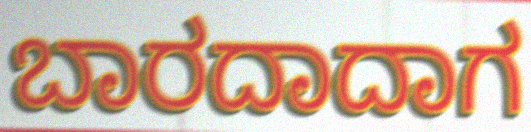
ಬಾರದಾದಾಗ